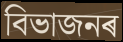
বিভাজনৰ